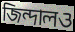
জিন্দালও